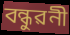
বন্ধুৱনী